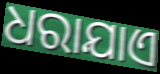
ଧରାଯାଏ